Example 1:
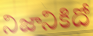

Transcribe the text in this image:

నిజానికిదో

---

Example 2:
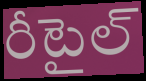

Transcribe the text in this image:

రీటైల్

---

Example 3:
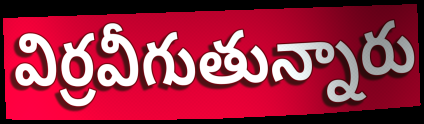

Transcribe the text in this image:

విర్రవీగుతున్నారు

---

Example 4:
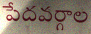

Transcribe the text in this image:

పేదవర్గాల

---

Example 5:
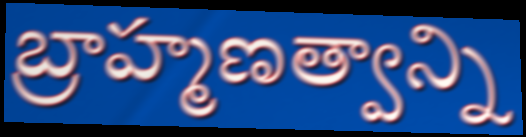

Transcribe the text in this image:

బ్రాహ్మణత్వాన్ని